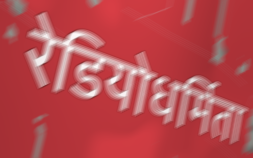
रेडियोधर्मिता